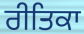
ਰੀਤਿਕਾ